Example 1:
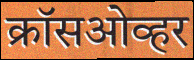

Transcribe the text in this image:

क्रॉसओव्हर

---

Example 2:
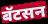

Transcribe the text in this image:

बॅटसन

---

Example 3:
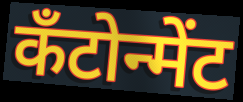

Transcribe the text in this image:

कँटोन्मेंट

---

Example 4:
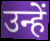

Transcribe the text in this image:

उन्हें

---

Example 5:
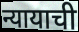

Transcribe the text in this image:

न्यायाची